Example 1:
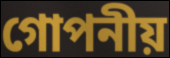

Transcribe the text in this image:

গোপনীয়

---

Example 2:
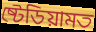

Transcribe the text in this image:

ষ্টেডিয়ামত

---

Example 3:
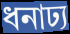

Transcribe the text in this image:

ধনাঢ্য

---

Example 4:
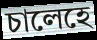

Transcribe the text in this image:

চালেহে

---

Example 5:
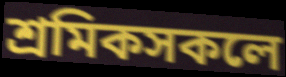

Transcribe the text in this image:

শ্ৰমিকসকলে